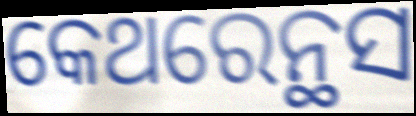
କେଥରେନ୍ଥସ